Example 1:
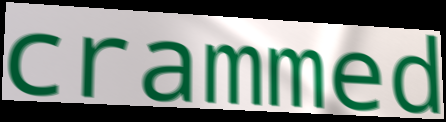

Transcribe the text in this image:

crammed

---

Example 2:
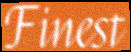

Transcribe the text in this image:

Finest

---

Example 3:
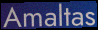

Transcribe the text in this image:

Amaltas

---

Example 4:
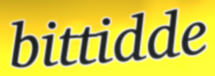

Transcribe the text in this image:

bittidde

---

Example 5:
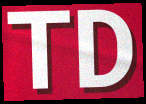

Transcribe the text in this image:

TD